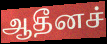
ஆதீனச்